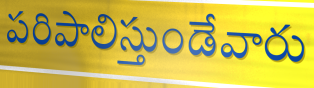
పరిపాలిస్తుండేవారు